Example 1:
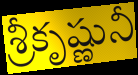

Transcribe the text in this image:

శ్రీకృష్ణునీ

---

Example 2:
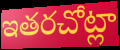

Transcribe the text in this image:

ఇతరచోట్లా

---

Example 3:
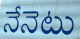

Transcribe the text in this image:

నేనెటు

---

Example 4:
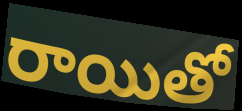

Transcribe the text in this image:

రాయితో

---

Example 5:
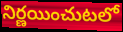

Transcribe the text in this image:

నిర్ణయించుటలో